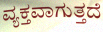
ವ್ಯಕ್ತವಾಗುತ್ತದೆ